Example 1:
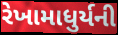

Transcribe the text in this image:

રેખામાધુર્યની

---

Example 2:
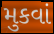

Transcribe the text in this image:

મુકવાં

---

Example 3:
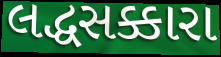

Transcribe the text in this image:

લદ્ધસક્કારા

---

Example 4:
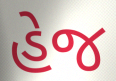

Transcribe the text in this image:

હેજ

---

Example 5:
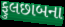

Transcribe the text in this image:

ફુલછાબના